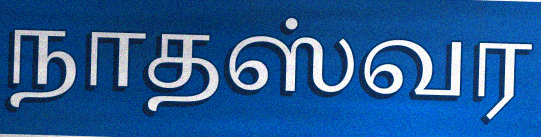
நாதஸ்வர